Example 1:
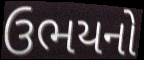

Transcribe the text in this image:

ઉભયનો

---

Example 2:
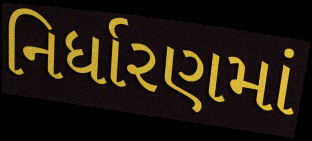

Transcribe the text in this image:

નિર્ધારણમાં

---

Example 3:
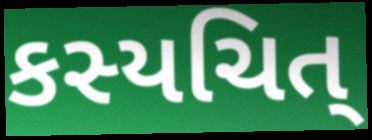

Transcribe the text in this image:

કસ્યચિત્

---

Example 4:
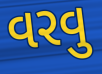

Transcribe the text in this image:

વરવુ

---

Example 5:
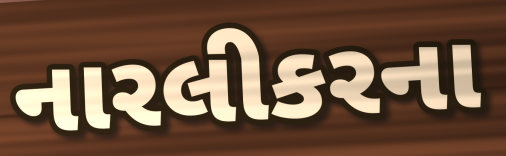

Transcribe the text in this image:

નારલીકરના